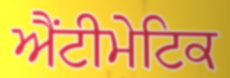
ਐਂਟੀਮੇਟਿਕ